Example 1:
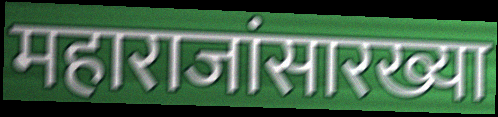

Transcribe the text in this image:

महाराजांसारख्या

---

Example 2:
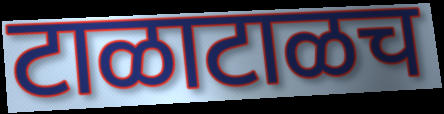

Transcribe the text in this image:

टाळाटाळच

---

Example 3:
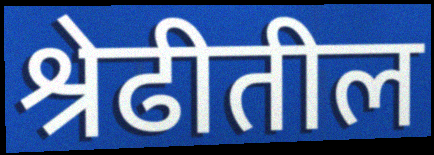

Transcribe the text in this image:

श्रेढीतील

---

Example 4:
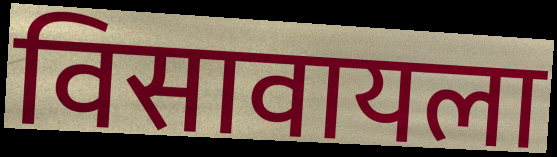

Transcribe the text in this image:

विसावायला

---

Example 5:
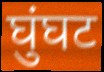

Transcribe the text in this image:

घुंघट